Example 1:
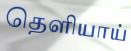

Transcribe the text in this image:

தெளியாய்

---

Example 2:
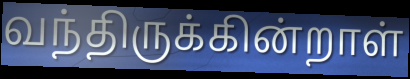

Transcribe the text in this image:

வந்திருக்கின்றாள்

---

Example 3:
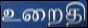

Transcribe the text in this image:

உறைதி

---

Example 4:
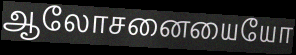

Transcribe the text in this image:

ஆலோசனையையோ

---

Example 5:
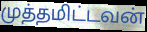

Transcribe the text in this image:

முத்தமிட்டவன்